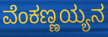
ವೆಂಕಣ್ಣಯ್ಯನ